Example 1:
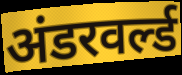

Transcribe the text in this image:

अंडरवर्ल्ड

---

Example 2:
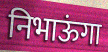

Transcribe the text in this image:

निभाऊंगा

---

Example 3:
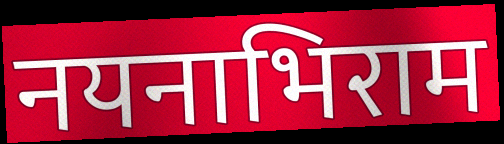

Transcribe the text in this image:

नयनाभिराम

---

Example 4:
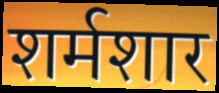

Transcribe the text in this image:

शर्मशार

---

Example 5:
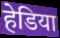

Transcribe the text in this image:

हेडिया